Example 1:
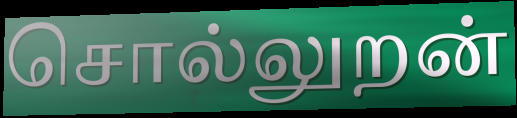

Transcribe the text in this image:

சொல்லுறன்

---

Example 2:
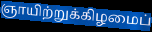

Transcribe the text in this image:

ஞாயிற்றுக்கிழமைப்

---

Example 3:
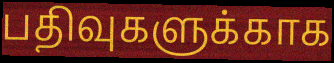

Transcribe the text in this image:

பதிவுகளுக்காக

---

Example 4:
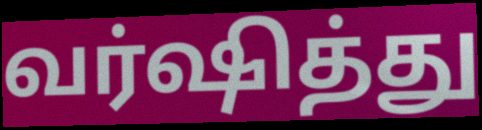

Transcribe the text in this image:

வர்ஷித்து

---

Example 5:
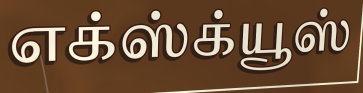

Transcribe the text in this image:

எக்ஸ்க்யூஸ்